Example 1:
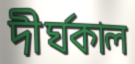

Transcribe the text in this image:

দীর্ঘকাল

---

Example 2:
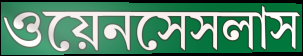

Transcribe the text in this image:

ওয়েনসেসলাস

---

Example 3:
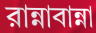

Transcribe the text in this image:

রান্নাবান্না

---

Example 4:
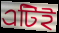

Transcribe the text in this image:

এটিই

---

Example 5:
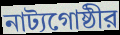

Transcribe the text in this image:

নাট্যগোষ্ঠীর